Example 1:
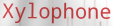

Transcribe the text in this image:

Xylophone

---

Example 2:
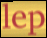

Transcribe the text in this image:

lep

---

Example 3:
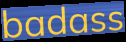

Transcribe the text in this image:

badass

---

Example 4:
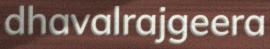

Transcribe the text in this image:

dhavalrajgeera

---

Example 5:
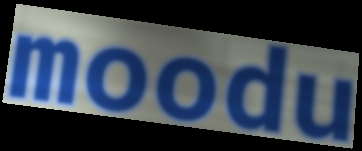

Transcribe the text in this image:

moodu